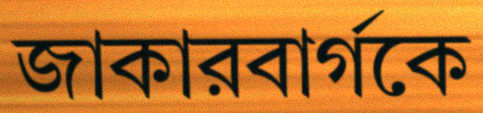
জাকারবার্গকে